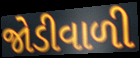
જોડીવાળી